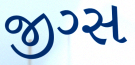
જીગ્સ